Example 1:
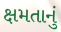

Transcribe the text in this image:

ક્ષમતાનું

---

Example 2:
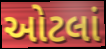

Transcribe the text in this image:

ઓટલાં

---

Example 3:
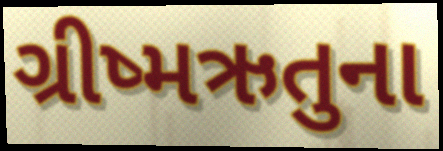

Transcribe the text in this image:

ગ્રીષ્મઋતુના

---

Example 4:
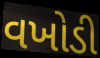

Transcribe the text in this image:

વખોડી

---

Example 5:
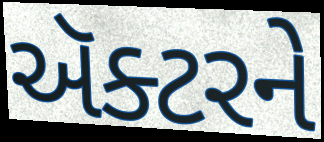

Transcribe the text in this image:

ઍક્ટરને